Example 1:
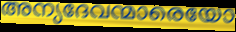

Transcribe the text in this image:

അന്യദേവന്മാരെയോ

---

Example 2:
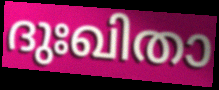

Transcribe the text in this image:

ദുഃഖിതാ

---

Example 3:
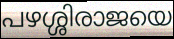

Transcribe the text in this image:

പഴശ്ശിരാജയെ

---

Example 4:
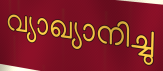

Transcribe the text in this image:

വ്യാഖ്യാനിച്ചു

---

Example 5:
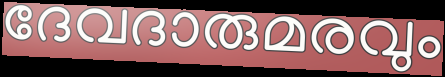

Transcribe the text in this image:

ദേവദാരുമരവും